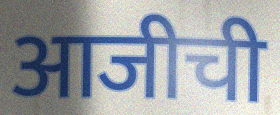
आजीची